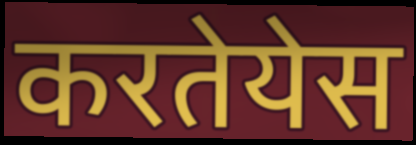
करतेयेस